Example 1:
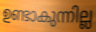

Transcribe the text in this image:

ഉണ്ടാകുന്നില്ല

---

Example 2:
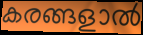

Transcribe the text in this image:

കരങ്ങളാൽ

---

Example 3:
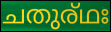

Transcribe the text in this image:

ചതുര്ഥഃ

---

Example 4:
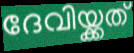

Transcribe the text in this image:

ദേവിയ്ക്കത്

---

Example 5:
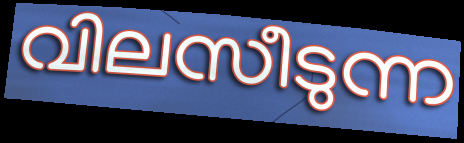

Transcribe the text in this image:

വിലസീടുന്ന